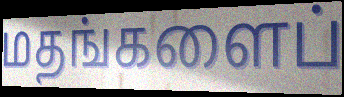
மதங்களைப்